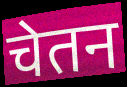
चेतन